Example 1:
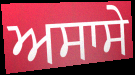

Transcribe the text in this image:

ਅਸਾਸੇ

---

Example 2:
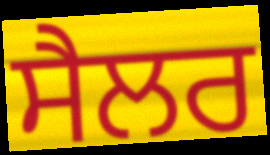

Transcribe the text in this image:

ਸੈਲਰ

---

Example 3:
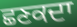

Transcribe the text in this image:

ਛਣਕਦਾ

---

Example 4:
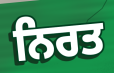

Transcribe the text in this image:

ਨਿਰਤ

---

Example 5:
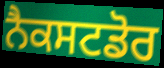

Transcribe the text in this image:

ਨੈਕਸਟਡੋਰ